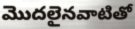
మొదలైనవాటితో